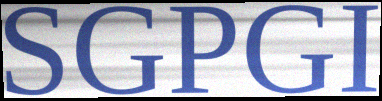
SGPGI